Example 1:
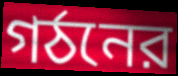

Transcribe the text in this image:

গঠনের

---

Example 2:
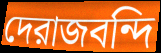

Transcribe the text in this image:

দেরাজবন্দি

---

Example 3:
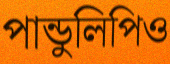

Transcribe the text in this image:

পান্ডুলিপিও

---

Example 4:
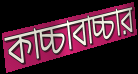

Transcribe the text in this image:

কাচ্চাবাচ্চার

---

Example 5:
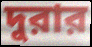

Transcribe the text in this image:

দুরার